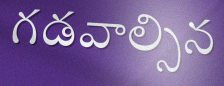
గడవాల్సిన